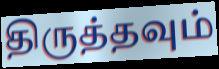
திருத்தவும்